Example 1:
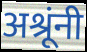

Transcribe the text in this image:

अश्रूंनी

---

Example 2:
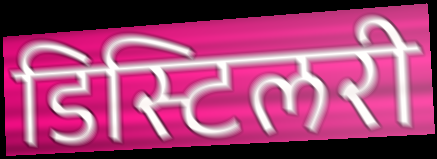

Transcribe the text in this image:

डिस्टिलरी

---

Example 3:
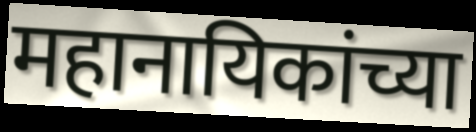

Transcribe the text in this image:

महानायिकांच्या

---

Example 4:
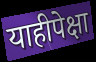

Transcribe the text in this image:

याहीपेक्षा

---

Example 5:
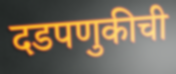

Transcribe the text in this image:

दडपणुकीची